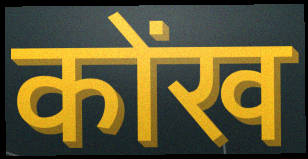
कोंख